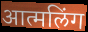
आत्मलिंग